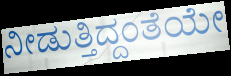
ನೀಡುತ್ತಿದ್ದಂತೆಯೇ